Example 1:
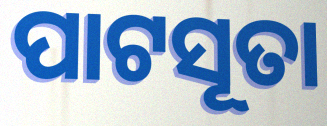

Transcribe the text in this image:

ପାଟସୂତା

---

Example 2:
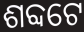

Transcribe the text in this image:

ଶବ୍ଦଟେ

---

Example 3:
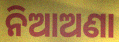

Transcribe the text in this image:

ନିଆଅଣା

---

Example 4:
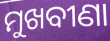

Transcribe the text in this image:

ମୁଖବୀଣା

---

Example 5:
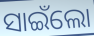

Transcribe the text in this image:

ସାଇଁଲୋ